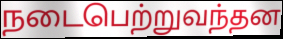
நடைபெற்றுவந்தன